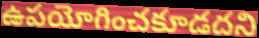
ఉపయోగించకూడదని